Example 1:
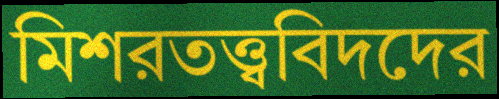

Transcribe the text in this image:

মিশরতত্ত্ববিদদের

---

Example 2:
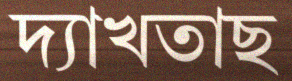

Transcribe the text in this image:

দ্যাখতাছ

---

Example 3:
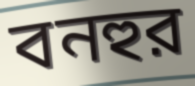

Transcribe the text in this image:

বনহুর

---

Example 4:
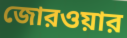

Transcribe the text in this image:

জোরওয়ার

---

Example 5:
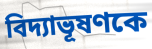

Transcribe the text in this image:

বিদ্যাভূষণকে